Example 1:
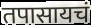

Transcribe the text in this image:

तपासायचं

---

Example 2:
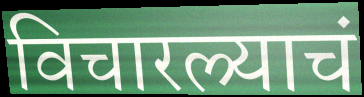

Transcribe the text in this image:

विचारल्याचं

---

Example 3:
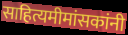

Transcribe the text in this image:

साहित्यमीमांसकांनी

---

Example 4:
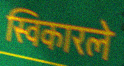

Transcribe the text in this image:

स्विकारले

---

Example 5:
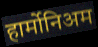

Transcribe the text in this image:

हार्मोनिअम